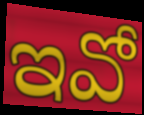
ఇవో